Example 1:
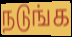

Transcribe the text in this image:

நடுங்க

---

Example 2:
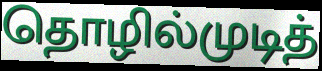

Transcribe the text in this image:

தொழில்முடித்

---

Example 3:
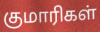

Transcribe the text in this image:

குமாரிகள்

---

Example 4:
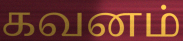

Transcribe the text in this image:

கவனம்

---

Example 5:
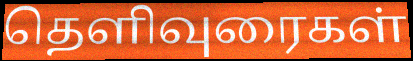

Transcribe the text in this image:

தெளிவுரைகள்